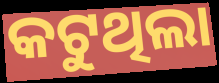
କଟୁଥିଲା